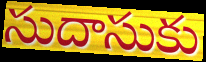
సుదాసుకు